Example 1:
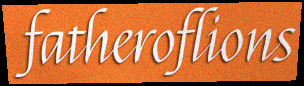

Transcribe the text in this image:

fatheroflions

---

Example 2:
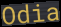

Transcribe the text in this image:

Odia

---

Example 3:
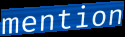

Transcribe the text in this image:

mention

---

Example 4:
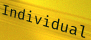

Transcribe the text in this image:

Individual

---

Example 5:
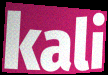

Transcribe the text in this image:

kali